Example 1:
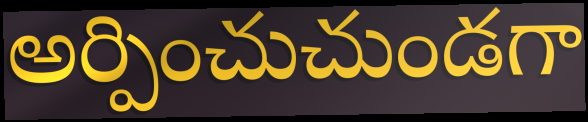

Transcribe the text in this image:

అర్పించుచుండగా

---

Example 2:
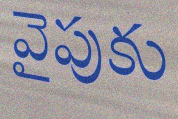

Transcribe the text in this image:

వైపుకు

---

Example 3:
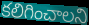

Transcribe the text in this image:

కలిగించాలని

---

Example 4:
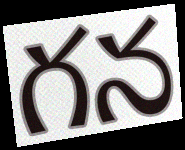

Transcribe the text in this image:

గన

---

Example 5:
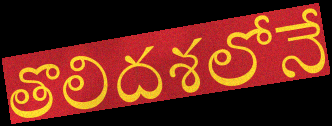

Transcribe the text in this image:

తొలిదశలోనే